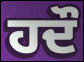
ਹਦੌ